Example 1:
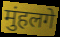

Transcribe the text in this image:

मुंहलगे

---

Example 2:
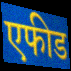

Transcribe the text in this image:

एफीड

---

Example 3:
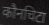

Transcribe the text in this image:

कौनचिटा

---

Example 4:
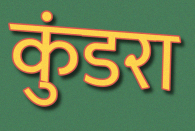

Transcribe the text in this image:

कुंडरा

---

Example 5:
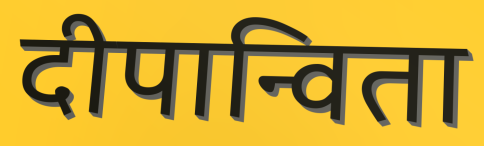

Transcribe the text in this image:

दीपान्विता